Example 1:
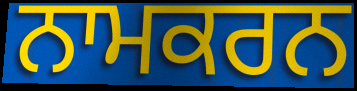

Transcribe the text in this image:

ਨਾਮਕਰਨ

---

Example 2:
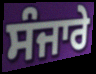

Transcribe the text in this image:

ਸੰਜਾਰੇ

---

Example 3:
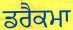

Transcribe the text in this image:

ਡਰੈਕਮਾ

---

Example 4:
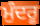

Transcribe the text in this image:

ਮੁੰਦਰੂ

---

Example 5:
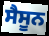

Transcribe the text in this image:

ਸੈਸੂਨ